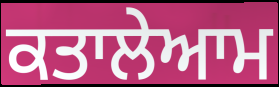
ਕਤਾਲੇਆਮ